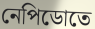
নেপিডোতে